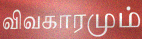
விவகாரமும்